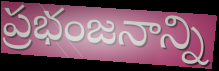
ప్రభంజనాన్ని